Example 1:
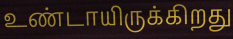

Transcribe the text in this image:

உண்டாயிருக்கிறது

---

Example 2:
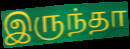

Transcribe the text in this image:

இருந்தா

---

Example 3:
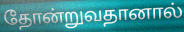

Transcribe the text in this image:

தோன்றுவதானால்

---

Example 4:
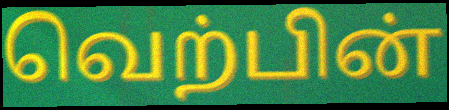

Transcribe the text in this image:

வெற்பின்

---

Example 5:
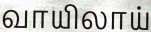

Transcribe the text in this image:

வாயிலாய்